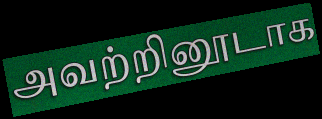
அவற்றினூடாக